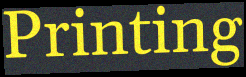
Printing